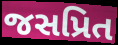
જસપ્રિત